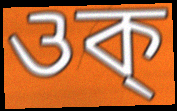
ওক্